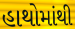
હાથોમાંથી